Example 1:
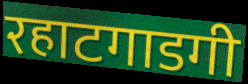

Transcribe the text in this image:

रहाटगाडगी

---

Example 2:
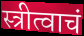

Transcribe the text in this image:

स्त्रीत्वाचं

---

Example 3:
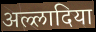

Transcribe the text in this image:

अल्लादिया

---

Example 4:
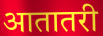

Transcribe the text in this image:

आतातरी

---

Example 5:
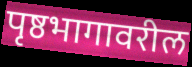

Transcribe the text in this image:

पृष्ठभागावरील